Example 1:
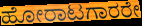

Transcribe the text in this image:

ಹೋರಾಟಗಾರರೇ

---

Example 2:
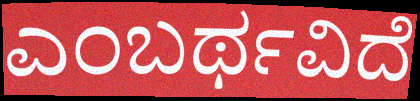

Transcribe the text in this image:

ಎಂಬರ್ಥವಿದೆ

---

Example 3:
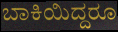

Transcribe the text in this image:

ಬಾಕಿಯಿದ್ದರೂ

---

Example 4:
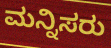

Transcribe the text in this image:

ಮನ್ನಿಸರು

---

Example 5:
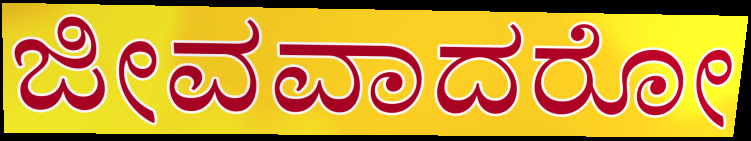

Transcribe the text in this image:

ಜೀವವಾದರೋ